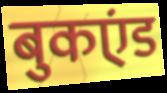
बुकएंड